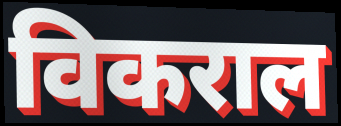
विकराल